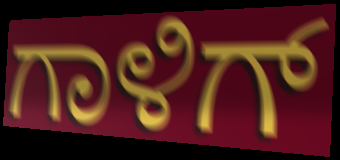
ಗಾಳಿಗ್